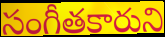
సంగీతకారుని